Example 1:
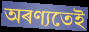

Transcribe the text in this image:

অৰণ্যতেই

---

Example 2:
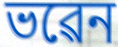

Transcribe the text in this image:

ভৱেন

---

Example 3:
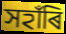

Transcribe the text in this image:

সহাঁৰি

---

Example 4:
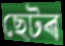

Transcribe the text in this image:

ছেটৰ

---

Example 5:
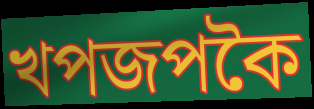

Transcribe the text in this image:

খপজপকৈ